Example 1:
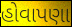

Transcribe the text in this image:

હોવાપણા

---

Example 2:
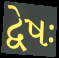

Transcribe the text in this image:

દ્વેષઃ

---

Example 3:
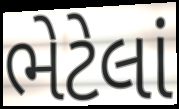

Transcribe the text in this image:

ભેટેલાં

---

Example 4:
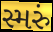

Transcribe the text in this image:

સ્મરું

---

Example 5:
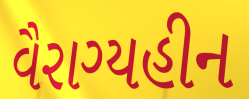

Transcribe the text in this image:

વૈરાગ્યહીન